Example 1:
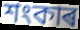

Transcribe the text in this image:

শংকাৰ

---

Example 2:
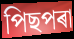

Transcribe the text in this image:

পিছপৰা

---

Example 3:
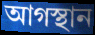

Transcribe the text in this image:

আগস্থান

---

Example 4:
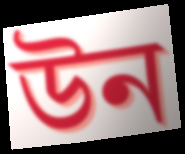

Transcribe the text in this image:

উন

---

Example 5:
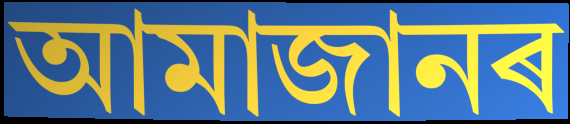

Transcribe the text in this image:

আমাজানৰ